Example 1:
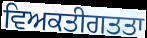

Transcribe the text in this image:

ਵਿਅਕਤੀਗਤਤਾ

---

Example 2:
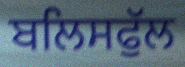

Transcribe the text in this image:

ਬਲਿਸਫੁੱਲ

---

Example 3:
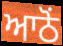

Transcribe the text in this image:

ਆਠੋਂ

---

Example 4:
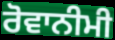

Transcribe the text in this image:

ਰੋਵਾਨੀਮੀ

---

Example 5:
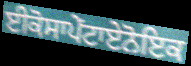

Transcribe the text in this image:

ਈਕੋਸਾਪੇਂਟਾਏਨੋਇਕ